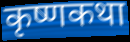
कृष्णकथा